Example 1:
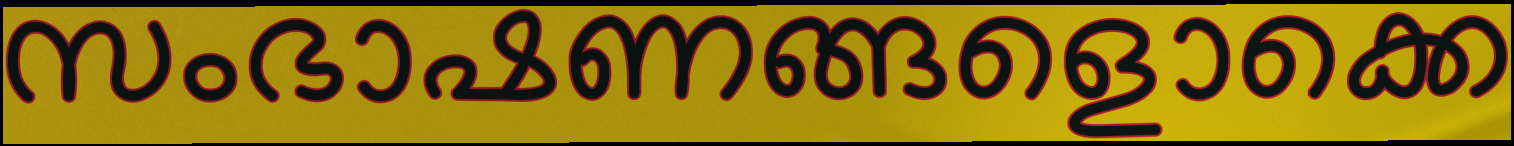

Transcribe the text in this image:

സംഭാഷണങ്ങളൊക്കെ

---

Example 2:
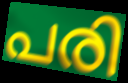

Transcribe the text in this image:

പരി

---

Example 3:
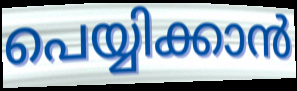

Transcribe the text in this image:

പെയ്യിക്കാൻ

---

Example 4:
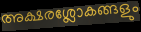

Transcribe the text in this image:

അക്ഷരശ്ലോകങ്ങളും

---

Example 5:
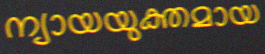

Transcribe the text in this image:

ന്യായയുക്തമായ